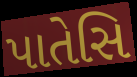
પાતેસિ